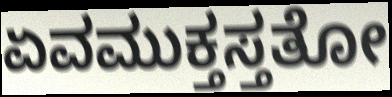
ಏವಮುಕ್ತಸ್ತತೋ